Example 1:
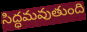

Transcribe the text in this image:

సిద్ధమవుతుంది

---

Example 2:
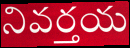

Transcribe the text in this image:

నివర్తయ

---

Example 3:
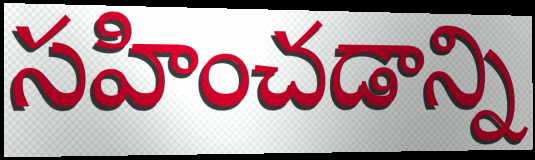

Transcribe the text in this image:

సహించడాన్ని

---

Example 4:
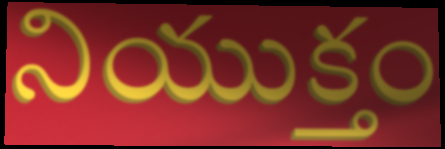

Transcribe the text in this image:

నియుక్తం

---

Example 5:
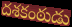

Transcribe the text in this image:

దశకంఠుడు